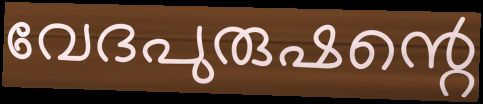
വേദപുരുഷന്റെ